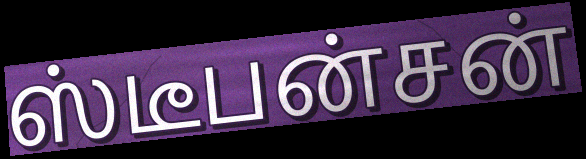
ஸ்டீபன்சன்